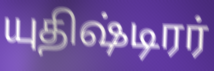
யுதிஷ்டிரர்